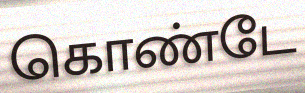
கொண்டே